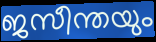
ജസീന്തയും